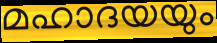
മഹാദയയും